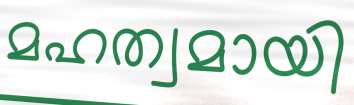
മഹത്വമായി